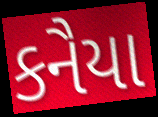
કનૈયા